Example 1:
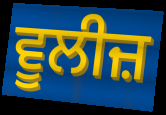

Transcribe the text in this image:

ਵੂਲੀਜ਼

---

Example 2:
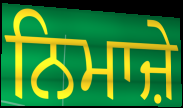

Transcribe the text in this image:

ਨਿਮਾਜ਼ੇ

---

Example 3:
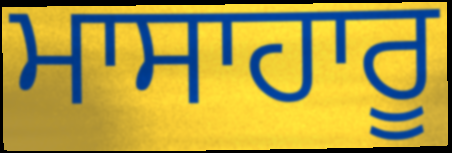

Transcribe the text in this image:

ਮਾਸਾਹਾਰੂ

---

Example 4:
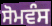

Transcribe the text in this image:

ਸੋਮਵੰਸ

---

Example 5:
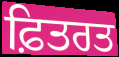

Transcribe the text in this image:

ਫ਼ਿਤਰਤ